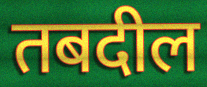
तबदील